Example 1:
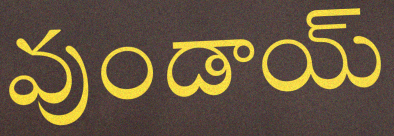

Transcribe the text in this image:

వుండాయ్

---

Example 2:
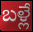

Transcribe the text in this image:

బళ్లే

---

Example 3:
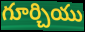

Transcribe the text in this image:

గూర్చియు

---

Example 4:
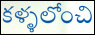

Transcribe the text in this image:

కళ్ళలోంచి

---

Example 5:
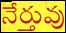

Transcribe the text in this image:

నేర్తువు